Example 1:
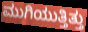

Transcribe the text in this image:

ಮುಗಿಯುತ್ತಿತ್ತು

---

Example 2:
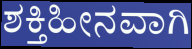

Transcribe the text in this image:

ಶಕ್ತಿಹೀನವಾಗಿ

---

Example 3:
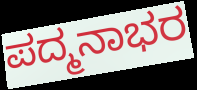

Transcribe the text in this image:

ಪದ್ಮನಾಭರ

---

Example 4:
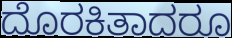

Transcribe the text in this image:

ದೊರಕಿತಾದರೂ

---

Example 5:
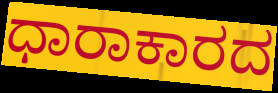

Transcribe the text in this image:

ಧಾರಾಕಾರದ